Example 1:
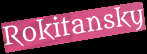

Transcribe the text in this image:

Rokitansky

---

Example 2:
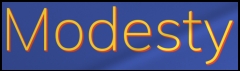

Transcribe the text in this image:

Modesty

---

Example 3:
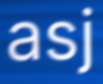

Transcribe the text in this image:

asj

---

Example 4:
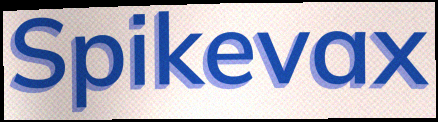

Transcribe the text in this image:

Spikevax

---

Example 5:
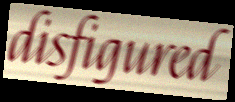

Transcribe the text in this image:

disfigured